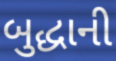
બુદ્ધાની